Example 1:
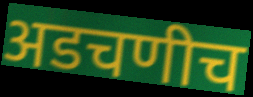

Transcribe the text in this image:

अडचणीच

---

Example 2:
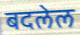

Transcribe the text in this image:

बदलेल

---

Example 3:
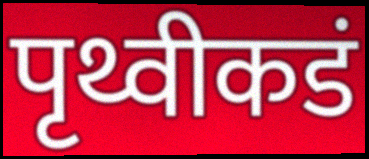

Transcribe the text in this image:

पृथ्वीकडं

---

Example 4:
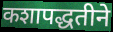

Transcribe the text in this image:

कशापद्धतीने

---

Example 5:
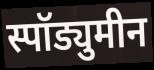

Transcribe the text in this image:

स्पॉड्युमीन